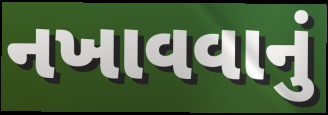
નખાવવાનું